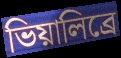
ভিয়ালিব্রে